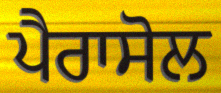
ਪੈਰਾਸੋਲ